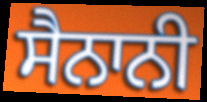
ਸੈਨਾਨੀ